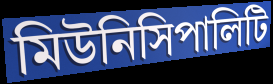
মিউনিসিপালিটি